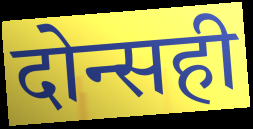
दोन्सही